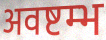
अवष्टम्भ